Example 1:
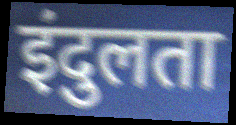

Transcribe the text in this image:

इंदुलता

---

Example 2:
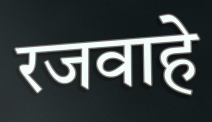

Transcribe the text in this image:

रजवाहे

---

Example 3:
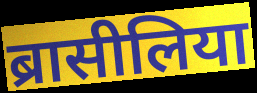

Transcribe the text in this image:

ब्रासीलिया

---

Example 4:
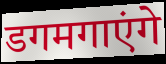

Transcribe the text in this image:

डगमगाएंगे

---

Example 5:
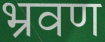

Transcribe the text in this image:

भ्रवण